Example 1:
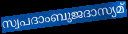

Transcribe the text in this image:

സ്വപദാംബുജദാസ്യമ്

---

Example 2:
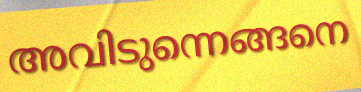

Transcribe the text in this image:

അവിടുന്നെങ്ങനെ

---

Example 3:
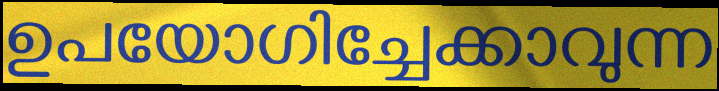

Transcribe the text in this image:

ഉപയോഗിച്ചേക്കാവുന്ന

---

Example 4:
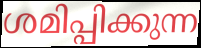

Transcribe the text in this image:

ശമിപ്പിക്കുന്ന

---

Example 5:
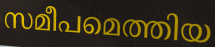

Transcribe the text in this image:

സമീപമെത്തിയ